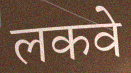
लकवे